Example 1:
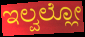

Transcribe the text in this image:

ಇಲ್ವಲ್ಲೋ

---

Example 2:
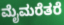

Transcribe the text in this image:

ಮೈಮರೆತರೆ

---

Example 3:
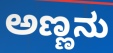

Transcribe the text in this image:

ಅಣ್ಣನು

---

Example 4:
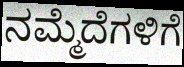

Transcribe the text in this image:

ನಮ್ಮೆದೆಗಳಿಗೆ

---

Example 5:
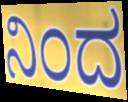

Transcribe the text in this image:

ನಿಂದ